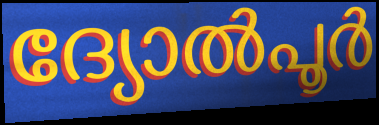
ദ്യോൽപൂർ